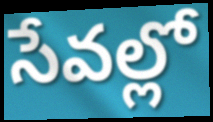
సేవల్లో